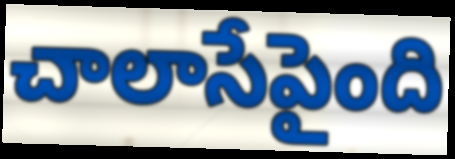
చాలాసేపైంది